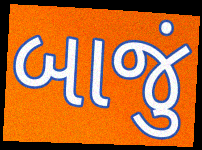
બાજું